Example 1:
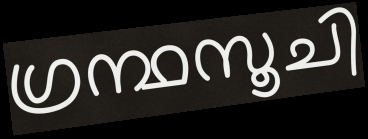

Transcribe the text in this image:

ഗ്രന്ഥസൂചി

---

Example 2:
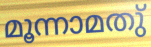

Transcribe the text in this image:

മൂന്നാമതു്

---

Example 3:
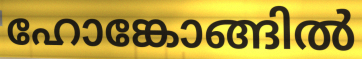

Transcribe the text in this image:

ഹോങ്കോങ്ങിൽ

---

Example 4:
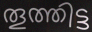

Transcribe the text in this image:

തൂത്തിട്ട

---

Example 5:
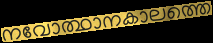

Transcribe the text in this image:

നവോത്ഥാനകാലത്തെ